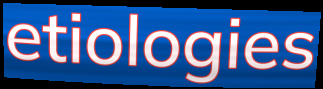
etiologies